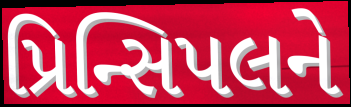
પ્રિન્સિપલને